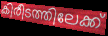
കിരീടത്തിലേക്ക്